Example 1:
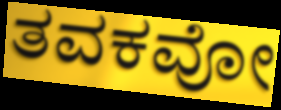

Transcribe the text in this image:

ತವಕವೋ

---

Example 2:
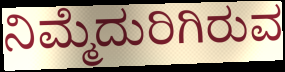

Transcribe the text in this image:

ನಿಮ್ಮೆದುರಿಗಿರುವ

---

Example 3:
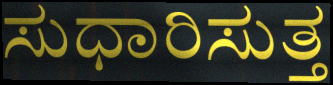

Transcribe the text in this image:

ಸುಧಾರಿಸುತ್ತ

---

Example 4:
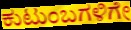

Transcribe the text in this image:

ಕುಟುಂಬಗಳಿಗೇ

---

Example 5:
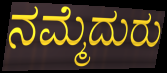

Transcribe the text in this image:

ನಮ್ಮೆದುರು